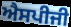
ਐਸਪੀਜੀ